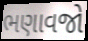
ભણાવજો